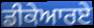
ਡੀਕੇਆਰਏ